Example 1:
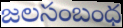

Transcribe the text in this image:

జలసంబంధ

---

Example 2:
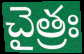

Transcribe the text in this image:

చైత్రః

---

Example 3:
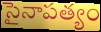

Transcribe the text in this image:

సైనాపత్యం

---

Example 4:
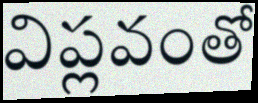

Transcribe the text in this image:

విప్లవంతో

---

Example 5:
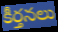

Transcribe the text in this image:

కీర్తనలు